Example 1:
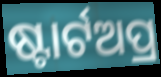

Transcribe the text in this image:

ଷ୍ଟାର୍ଟଅପ୍ର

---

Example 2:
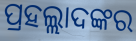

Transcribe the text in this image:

ପ୍ରହଲ୍ଲାଦଙ୍କର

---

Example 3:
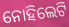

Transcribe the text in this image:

ନୋହିଲେଟି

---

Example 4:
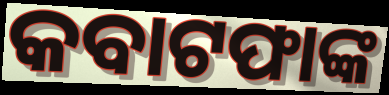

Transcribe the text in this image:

କବାଟଫାଙ୍କ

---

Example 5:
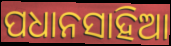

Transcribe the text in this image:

ପଧାନସାହିଆ